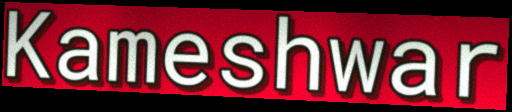
Kameshwar